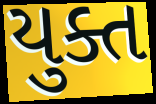
યુક્ત